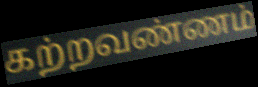
கற்றவண்ணம்